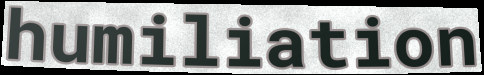
humiliation